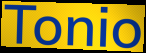
Tonio